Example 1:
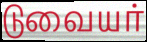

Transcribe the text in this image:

டுவையர்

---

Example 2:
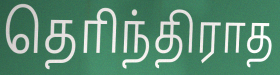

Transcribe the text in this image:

தெரிந்திராத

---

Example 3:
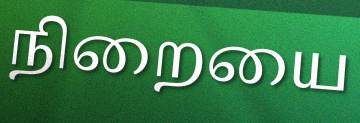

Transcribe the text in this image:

நிறையை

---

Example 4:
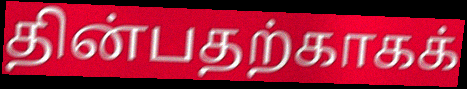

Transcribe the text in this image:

தின்பதற்காகக்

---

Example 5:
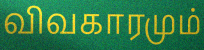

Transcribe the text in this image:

விவகாரமும்